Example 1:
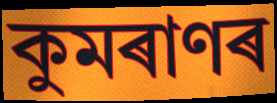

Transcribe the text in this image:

কুমৰাণৰ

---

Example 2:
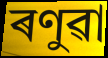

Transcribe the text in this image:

ৰণুৱা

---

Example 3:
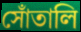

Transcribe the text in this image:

সোঁতালি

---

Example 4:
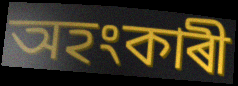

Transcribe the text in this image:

অহংকাৰী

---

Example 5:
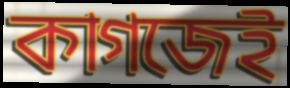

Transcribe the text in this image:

কাগজেই